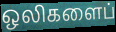
ஒலிகளைப்